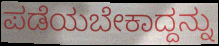
ಪಡೆಯಬೇಕಾದ್ದನ್ನು